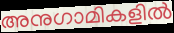
അനുഗാമികളിൽ